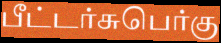
பீட்டர்சுபெர்கு